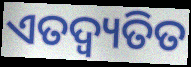
ଏତଦ୍ବ୍ୟତିତ